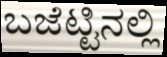
ಬಜೆಟ್ಟಿನಲ್ಲಿ